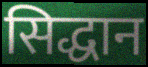
सिद्धान